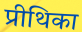
प्रीथिका